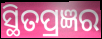
ସ୍ଥିତପ୍ରଜ୍ଞର